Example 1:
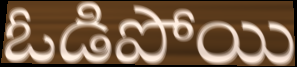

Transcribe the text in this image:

ఓడిపోయి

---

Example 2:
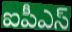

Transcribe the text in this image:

ఐపీఎస్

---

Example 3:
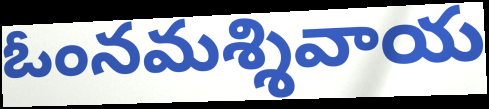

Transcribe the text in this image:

ఓంనమశ్శివాయ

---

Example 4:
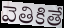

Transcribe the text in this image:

వెతికితే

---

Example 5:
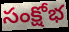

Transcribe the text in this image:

సంక్షోభ